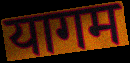
यागम